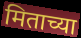
मिताच्या